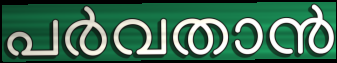
പർവതാൻ